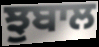
ਝੁਬਾਲ